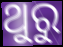
ଥୁରୁ